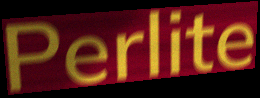
Perlite